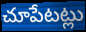
చూపేటట్లు